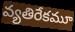
వ్యతిరేకమూ